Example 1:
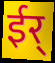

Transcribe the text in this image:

ईर्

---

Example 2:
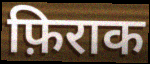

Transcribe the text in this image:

फ़िराक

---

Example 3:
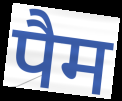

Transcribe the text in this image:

पैम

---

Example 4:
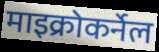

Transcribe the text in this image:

माइक्रोकर्नेल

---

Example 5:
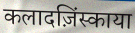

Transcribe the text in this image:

कलादज़िंस्काया